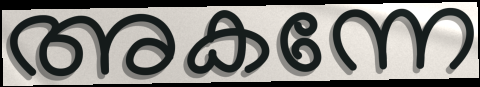
അകന്നേ